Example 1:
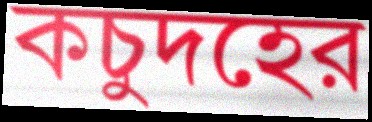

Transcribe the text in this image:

কচুদহের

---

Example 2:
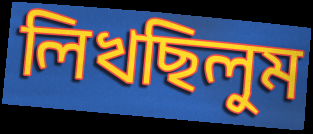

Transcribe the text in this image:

লিখছিলুম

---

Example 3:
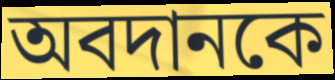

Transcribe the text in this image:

অবদানকে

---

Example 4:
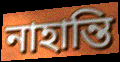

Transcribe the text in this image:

নাহান্তি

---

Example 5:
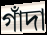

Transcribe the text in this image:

গাঁদা